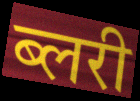
ब्लरी